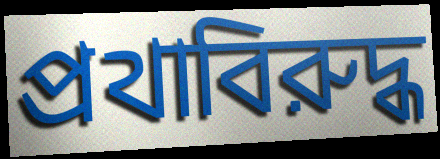
প্রথাবিরুদ্ধ